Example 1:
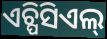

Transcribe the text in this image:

ଏଚ୍ପିସିଏଲ୍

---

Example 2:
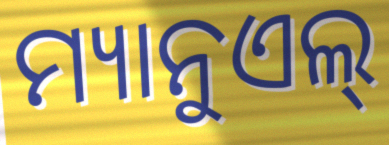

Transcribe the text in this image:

ମ୍ୟାନୁଏଲ୍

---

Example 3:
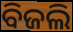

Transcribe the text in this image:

ବିଜଲି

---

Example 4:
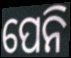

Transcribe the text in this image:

ପେନି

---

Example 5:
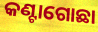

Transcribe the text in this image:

କଣ୍ଟାଗୋଛା